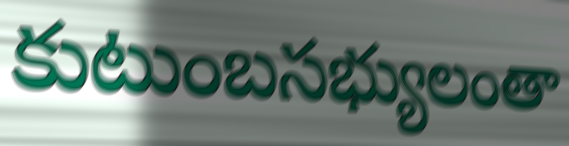
కుటుంబసభ్యులంతా